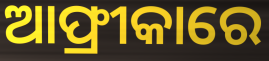
ଆଫ୍ରୀକାରେ